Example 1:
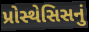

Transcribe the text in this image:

પ્રોસ્થેસિસનું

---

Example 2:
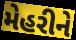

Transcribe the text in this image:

મેહરીને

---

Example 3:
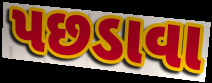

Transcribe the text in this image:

પછડાવા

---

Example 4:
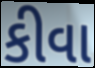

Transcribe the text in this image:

કીવા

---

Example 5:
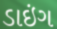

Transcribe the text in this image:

ડાઇંગ